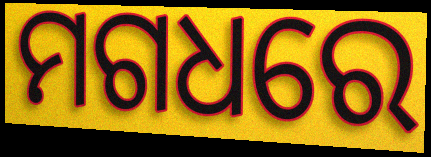
ମଗଧରେ